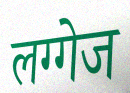
लग्गेज